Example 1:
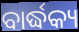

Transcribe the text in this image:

ବାର୍ଦ୍ଧକ୍ୟ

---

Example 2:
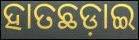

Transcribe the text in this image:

ହାତଛଡ଼ାଇ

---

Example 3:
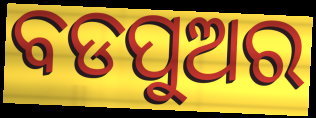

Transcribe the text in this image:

ବଡପୁଅର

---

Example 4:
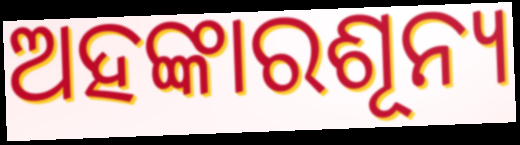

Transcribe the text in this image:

ଅହଙ୍କାରଶୂନ୍ୟ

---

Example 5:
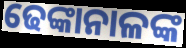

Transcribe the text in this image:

ଢେଙ୍କାନାଳଙ୍କ